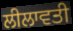
ਲੀਲਾਵਤੀ